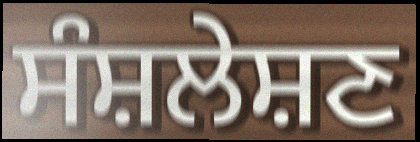
ਸੰਸ਼ਲੇਸ਼ਣ